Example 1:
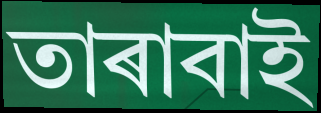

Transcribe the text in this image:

তাৰাবাই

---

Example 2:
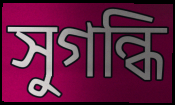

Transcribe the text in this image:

সুগন্ধি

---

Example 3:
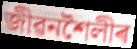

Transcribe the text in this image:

জীৱনশৈলীৰ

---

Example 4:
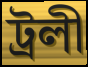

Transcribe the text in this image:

ট্ৰলী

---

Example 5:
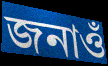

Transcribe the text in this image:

জনাওঁ